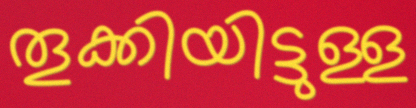
തൂക്കിയിട്ടുള്ള